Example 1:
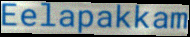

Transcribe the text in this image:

Eelapakkam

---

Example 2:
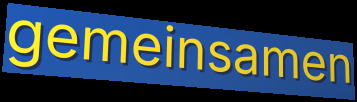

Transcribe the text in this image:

gemeinsamen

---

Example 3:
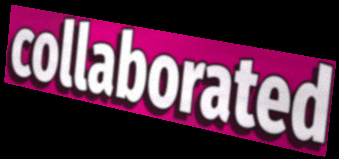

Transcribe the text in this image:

collaborated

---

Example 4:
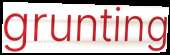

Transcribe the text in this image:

grunting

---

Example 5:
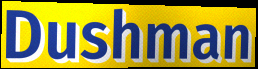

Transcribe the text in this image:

Dushman